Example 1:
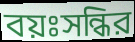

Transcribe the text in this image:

বয়ঃসন্ধির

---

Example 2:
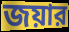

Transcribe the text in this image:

জয়ার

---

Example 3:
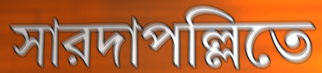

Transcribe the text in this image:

সারদাপল্লিতে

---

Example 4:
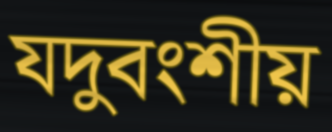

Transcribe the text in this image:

যদুবংশীয়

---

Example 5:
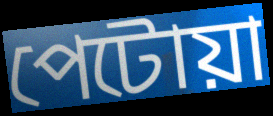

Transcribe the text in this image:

পেটোয়া